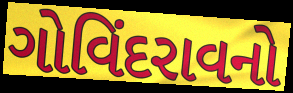
ગોવિંદરાવનો